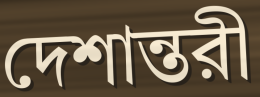
দেশান্তরী